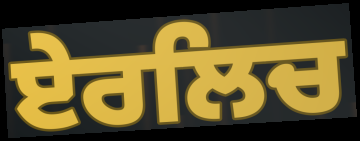
ਏਰਲਿਚ